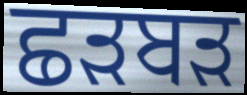
ਛੜਬੜ